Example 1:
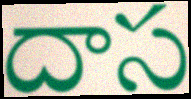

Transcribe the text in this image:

దాస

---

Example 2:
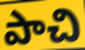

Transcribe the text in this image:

పాచి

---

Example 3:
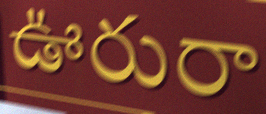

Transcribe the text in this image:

ఊరురా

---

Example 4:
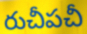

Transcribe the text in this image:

రుచీపచీ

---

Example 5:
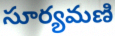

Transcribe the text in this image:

సూర్యమణి